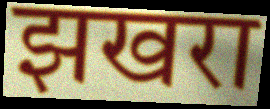
झखरा